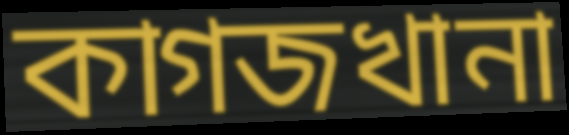
কাগজখানা